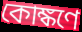
কোঙ্কণে